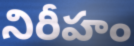
నిరీహం